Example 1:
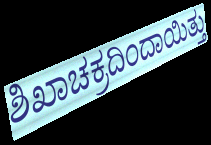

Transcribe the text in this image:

ಶಿಖಾಚಕ್ರದಿಂದಾಯಿತ್ತು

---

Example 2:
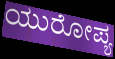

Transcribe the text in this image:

ಯುರೋಪ್ಯ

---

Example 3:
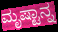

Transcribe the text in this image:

ಮೃಷ್ಟಾನ್ನ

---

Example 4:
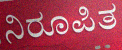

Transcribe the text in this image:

ನಿರೂಪಿತ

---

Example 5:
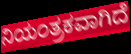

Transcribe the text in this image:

ನಿಯಂತ್ರಕವಾಗಿದೆ